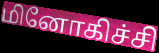
மினோகிச்சி